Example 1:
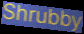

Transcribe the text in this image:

Shrubby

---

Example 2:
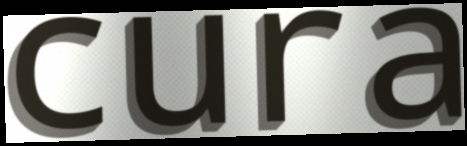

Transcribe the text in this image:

cura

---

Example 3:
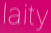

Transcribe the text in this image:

laity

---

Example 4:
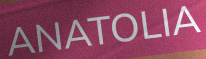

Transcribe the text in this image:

ANATOLIA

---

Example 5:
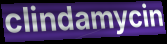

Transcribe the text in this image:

clindamycin